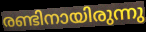
രണ്ടിനായിരുന്നു